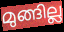
മുങ്ങില്ല